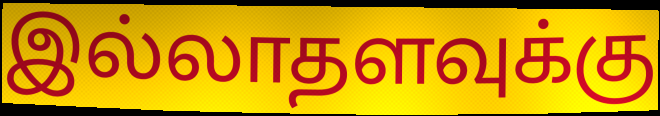
இல்லாதளவுக்கு